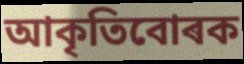
আকৃতিবোৰক